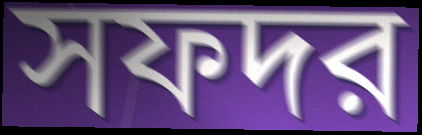
সফদর